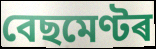
বেছমেণ্টৰ